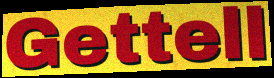
Gettell